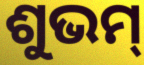
ଶୁଭମ୍